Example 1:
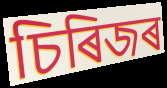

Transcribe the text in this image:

চিৰিজৰ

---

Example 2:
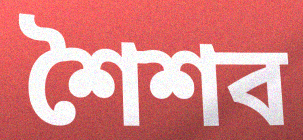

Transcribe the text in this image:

শৈশব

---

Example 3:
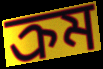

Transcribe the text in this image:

ক্ৰম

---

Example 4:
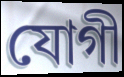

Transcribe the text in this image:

যোগী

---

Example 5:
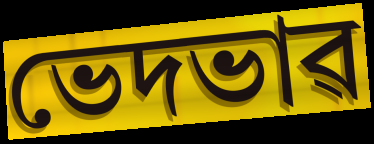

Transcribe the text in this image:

ভেদভাৱ